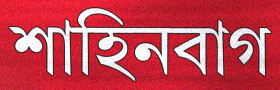
শাহিনবাগ